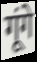
गूंगे